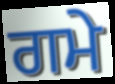
ਗਮੇ